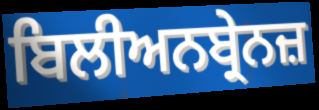
ਬਿਲੀਅਨਬ੍ਰੇਨਜ਼